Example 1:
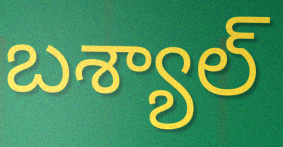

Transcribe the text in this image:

బశ్యాల్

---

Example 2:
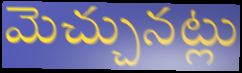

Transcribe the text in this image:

మెచ్చునట్లు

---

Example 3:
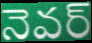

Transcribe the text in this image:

నెవర్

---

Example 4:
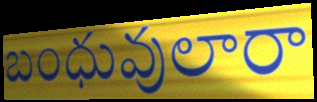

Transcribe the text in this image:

బంధువులారా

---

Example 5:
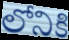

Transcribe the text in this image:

లోనికి